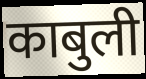
काबुली